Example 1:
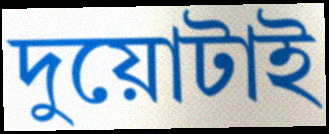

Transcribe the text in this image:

দুয়োটাই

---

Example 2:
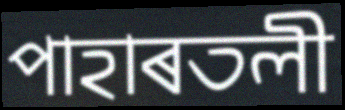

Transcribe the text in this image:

পাহাৰতলী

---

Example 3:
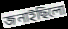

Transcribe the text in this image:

জনাইছিলো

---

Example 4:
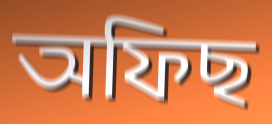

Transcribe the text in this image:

অফিছ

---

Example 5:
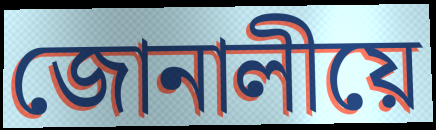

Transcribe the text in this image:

জোনালীয়ে